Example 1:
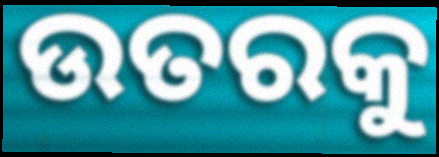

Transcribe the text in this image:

ଉତରକୁ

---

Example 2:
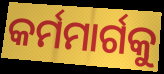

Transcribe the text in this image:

କର୍ମମାର୍ଗକୁ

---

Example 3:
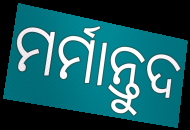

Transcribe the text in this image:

ମର୍ମାନ୍ତୁଦ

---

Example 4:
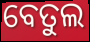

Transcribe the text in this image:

ବେତୁଲ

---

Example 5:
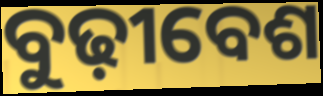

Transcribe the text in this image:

ବୁଢ଼ୀବେଶ